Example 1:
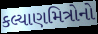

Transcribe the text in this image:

કલ્યાણમિત્રોનો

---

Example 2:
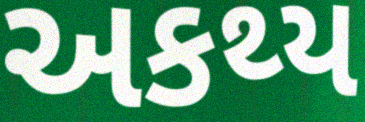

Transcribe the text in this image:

અકથ્ય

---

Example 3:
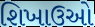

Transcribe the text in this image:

શિખાઉઓ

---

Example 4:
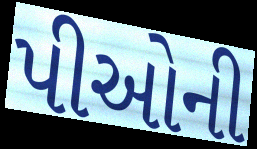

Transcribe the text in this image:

પીઓની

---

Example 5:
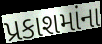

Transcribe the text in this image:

પ્રકાશમાંના